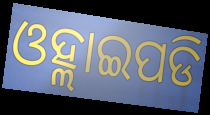
ଓହ୍ଲାଇପଡି